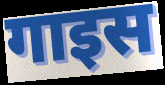
गाइस